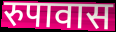
रुपावास